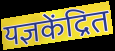
यज्ञकेंद्रित